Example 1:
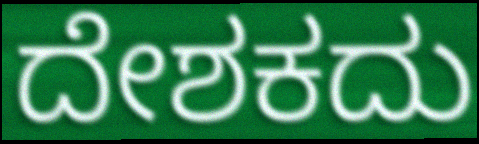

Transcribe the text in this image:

ದೇಶಕದು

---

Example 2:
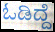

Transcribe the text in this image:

ಓಡಿದ್ದೆ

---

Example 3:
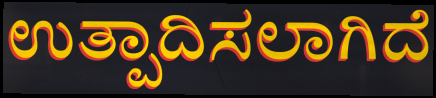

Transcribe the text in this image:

ಉತ್ಪಾದಿಸಲಾಗಿದೆ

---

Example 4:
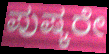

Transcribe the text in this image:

ಪುಷ್ಕರೇ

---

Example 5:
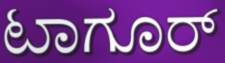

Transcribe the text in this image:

ಟಾಗೂರ್